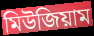
মিউজিয়াম